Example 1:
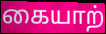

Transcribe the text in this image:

கையாற்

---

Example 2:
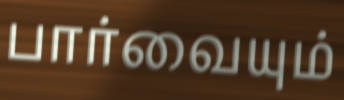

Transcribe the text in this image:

பார்வையும்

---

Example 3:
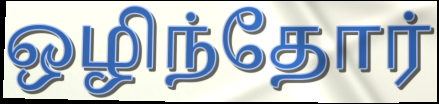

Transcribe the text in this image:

ஒழிந்தோர்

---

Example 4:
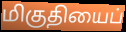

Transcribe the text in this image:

மிகுதியைப்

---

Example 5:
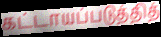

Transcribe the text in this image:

கட்டாயப்படுத்தித்